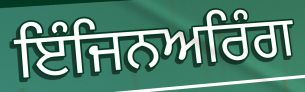
ਇੰਜਿਨਅਰਿੰਗ